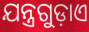
ଯନ୍ତ୍ରଗୁଡ଼ାଏ